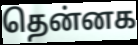
தென்னக